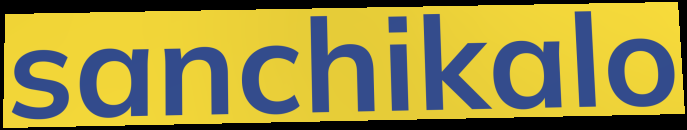
sanchikalo